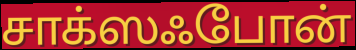
சாக்ஸஃபோன்